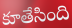
కూతేసింది